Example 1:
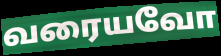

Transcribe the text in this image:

வரையவோ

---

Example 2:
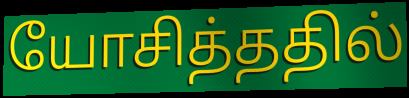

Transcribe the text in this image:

யோசித்ததில்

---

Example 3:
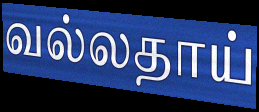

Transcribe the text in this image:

வல்லதாய்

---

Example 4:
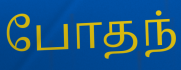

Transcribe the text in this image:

போதந்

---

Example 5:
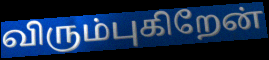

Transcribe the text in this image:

விரும்புகிறேன்